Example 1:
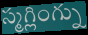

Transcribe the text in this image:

స్మగ్లింగ్ను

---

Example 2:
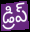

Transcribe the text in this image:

డ్రిప్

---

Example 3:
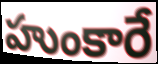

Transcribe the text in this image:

హుంకారే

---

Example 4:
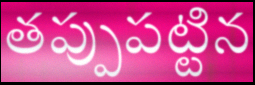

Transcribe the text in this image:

తప్పుపట్టిన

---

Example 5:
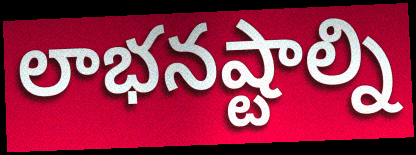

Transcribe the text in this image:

లాభనష్టాల్ని